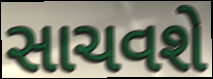
સાચવશે